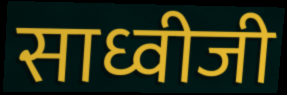
साध्वीजी